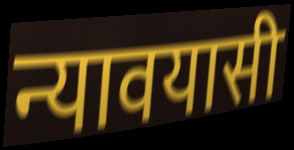
न्यावयासी